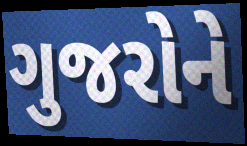
ગુજરોને